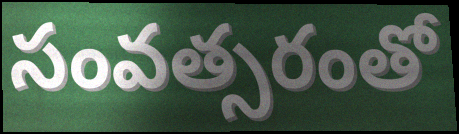
సంవత్సరంతో